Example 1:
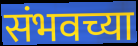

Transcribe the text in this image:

संभवच्या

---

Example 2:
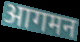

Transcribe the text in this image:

आगमन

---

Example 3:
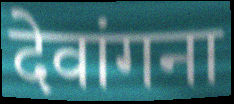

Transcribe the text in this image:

देवांगना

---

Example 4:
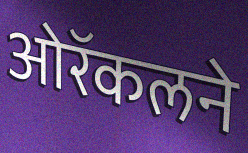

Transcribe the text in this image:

ओरॅकलने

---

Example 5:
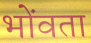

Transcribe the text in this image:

भोंवता